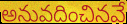
అనువదించినవే